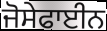
ਜੋਸੇਫਾਈਨ